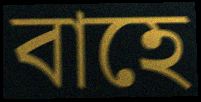
বাহে